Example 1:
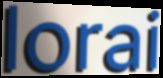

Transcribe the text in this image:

lorai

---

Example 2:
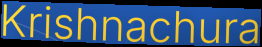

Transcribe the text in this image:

Krishnachura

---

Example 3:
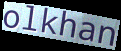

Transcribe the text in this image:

olkhan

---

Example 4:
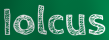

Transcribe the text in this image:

Iolcus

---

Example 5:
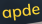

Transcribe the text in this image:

apde